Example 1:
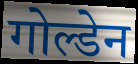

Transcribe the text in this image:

गोल्डेन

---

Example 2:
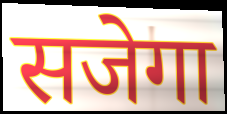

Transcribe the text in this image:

सजेगा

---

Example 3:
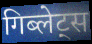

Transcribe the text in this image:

गिब्लेट्स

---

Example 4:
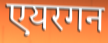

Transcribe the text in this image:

एयरगन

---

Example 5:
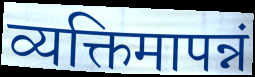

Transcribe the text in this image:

व्यक्तिमापन्नं